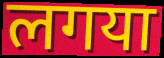
लगया